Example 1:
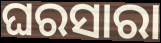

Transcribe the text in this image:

ଘରସାରା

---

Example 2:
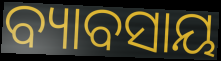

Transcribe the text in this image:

ବ୍ୟାବସାୟ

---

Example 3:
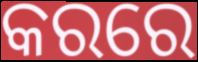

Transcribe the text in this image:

କରରେ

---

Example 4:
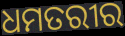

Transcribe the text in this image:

ଧମତରୀର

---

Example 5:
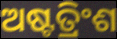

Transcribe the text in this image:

ଅଷ୍ଟତ୍ରିଂଶ